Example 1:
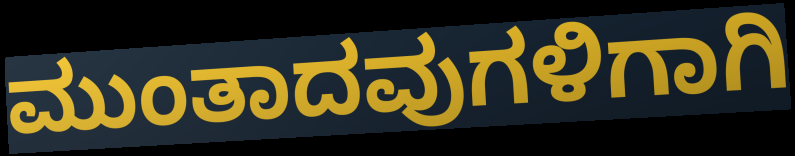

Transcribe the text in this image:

ಮುಂತಾದವುಗಳಿಗಾಗಿ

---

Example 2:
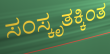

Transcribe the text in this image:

ಸಂಸ್ಕೃತಕ್ಕಿಂತ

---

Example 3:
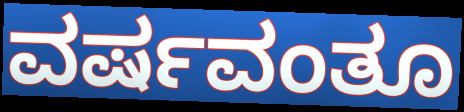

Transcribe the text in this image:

ವರ್ಷವಂತೂ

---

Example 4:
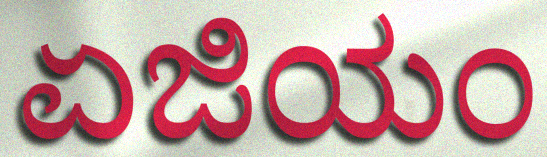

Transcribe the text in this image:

ಏಜಿಯಂ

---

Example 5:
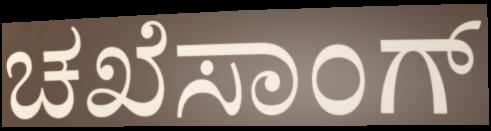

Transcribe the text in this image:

ಚಖೆಸಾಂಗ್